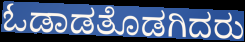
ಓಡಾಡತೊಡಗಿದರು